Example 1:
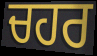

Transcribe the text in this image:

ਚਹਰ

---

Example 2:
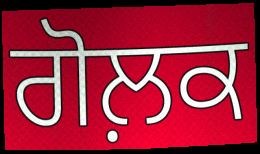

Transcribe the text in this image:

ਗੋਲ਼ਕ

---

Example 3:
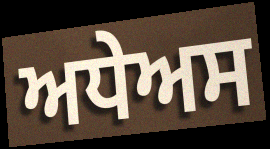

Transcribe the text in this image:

ਅਧੇਅਸ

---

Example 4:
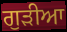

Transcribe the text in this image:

ਗੁਡ਼ੀਆ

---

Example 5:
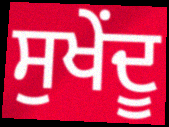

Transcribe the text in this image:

ਸੁਖੇਂਦੂ